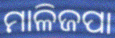
ମାଳିଜପା